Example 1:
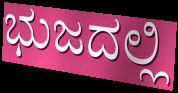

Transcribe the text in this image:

ಭುಜದಲ್ಲಿ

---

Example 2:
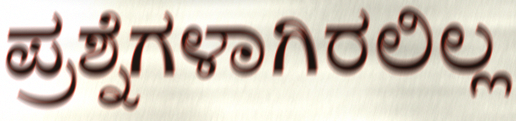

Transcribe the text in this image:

ಪ್ರಶ್ನೆಗಳಾಗಿರಲಿಲ್ಲ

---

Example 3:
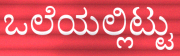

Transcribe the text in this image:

ಒಲೆಯಲ್ಲಿಟ್ಟು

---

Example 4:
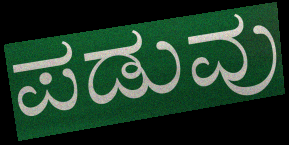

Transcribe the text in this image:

ಪಡುವು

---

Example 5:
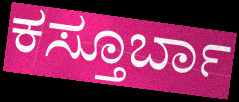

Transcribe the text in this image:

ಕಸ್ತೂರ್ಬಾ